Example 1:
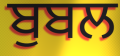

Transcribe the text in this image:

ਬੁਬਲ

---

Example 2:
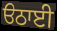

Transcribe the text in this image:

ੳਠਾਈ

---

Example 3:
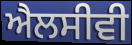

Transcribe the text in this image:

ਐਲਸੀਵੀ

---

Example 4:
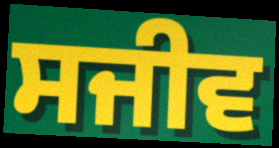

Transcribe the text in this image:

ਸਜੀਵ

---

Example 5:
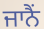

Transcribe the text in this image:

ਜਾਨੈਂ